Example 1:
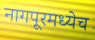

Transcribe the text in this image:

नागपूरमध्येच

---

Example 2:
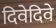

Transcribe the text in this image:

दिवेदिवे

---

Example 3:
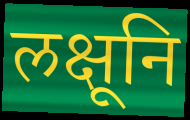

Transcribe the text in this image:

लक्षूनि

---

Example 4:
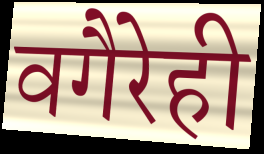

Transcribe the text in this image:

वगैरेही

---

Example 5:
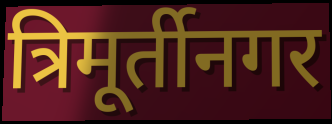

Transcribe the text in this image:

त्रिमूर्तीनगर